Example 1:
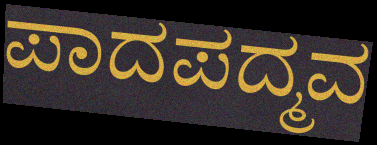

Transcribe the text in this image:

ಪಾದಪದ್ಮವ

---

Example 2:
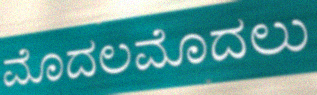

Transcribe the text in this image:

ಮೊದಲಮೊದಲು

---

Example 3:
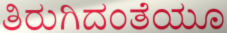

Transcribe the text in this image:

ತಿರುಗಿದಂತೆಯೂ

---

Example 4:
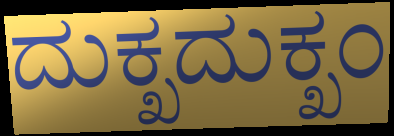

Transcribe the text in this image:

ದುಕ್ಖದುಕ್ಖಂ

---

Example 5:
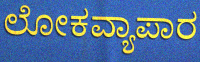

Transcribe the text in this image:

ಲೋಕವ್ಯಾಪಾರ